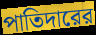
পাতিদারের